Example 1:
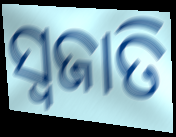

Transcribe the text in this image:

ସ୍ୱଜାତି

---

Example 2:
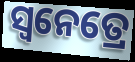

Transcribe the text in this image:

ସ୍ୱନେତ୍ରେ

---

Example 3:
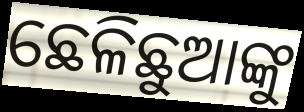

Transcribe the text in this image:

ଛେଳିଛୁଆଙ୍କୁ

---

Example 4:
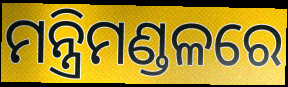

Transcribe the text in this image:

ମନ୍ତ୍ରିମଣ୍ଡଳରେ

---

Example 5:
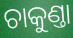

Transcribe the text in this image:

ଚାକୁଣ୍ତା